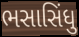
ભસાસિંધુ